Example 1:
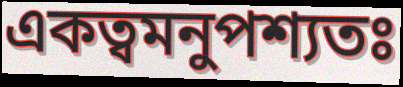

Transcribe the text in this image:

একত্বমনুপশ্যতঃ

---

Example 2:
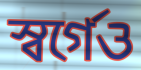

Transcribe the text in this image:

স্বর্গেও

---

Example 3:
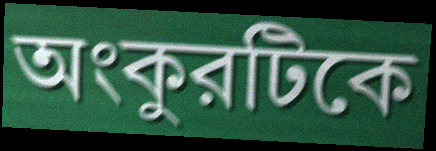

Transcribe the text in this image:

অংকুরটিকে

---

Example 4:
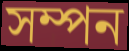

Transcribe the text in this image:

সম্পন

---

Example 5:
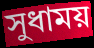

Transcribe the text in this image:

সুধাময়